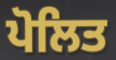
ਪੋਲਿਤ